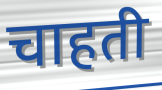
चाहती